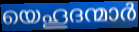
യെഹൂദന്മാർ